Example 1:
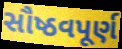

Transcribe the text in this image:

સૌષ્ઠવપૂર્ણ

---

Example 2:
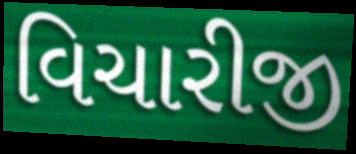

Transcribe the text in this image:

વિચારીજી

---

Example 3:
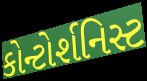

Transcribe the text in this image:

કોન્ટોર્શનિસ્ટ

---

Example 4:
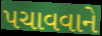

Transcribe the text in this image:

પચાવવાને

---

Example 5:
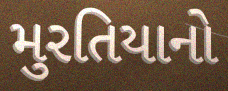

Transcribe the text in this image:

મુરતિયાનો